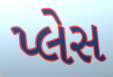
પ્લેસ